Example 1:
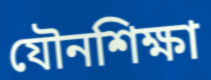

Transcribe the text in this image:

যৌনশিক্ষা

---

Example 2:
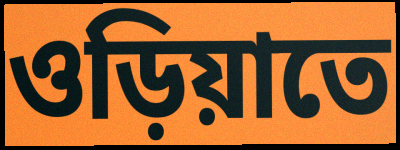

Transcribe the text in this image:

ওড়িয়াতে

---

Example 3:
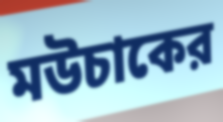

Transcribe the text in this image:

মউচাকের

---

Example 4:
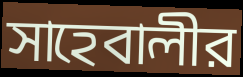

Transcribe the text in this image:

সাহেবালীর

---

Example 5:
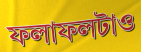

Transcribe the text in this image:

ফলাফলটাও